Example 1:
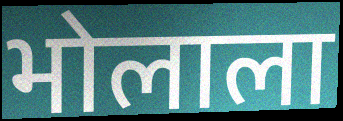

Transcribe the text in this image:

भोलाला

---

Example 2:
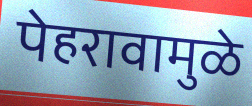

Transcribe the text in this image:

पेहरावामुळे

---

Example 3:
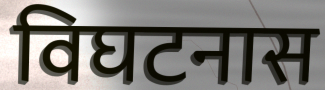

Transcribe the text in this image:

विघटनास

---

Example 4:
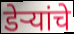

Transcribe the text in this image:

डेर्‍यांचे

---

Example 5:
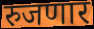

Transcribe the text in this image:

रुजणार